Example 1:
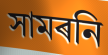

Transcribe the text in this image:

সামৰনি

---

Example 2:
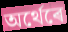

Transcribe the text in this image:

অৰ্থেৰে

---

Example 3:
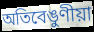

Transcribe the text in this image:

অতিবেঙুণীয়া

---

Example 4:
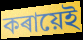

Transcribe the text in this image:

কৰায়েই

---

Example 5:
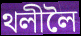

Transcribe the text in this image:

থলীলৈ